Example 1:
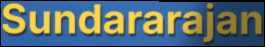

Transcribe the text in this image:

Sundararajan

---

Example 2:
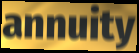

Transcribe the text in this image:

annuity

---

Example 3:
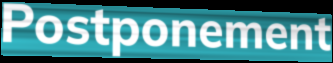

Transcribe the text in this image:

Postponement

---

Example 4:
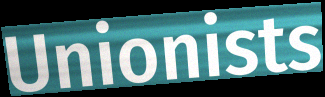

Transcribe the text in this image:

Unionists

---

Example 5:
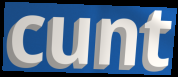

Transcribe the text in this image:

cunt